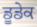
ਡੂਡੇਕ